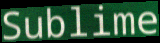
Sublime